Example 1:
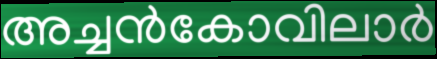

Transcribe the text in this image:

അച്ചൻകോവിലാർ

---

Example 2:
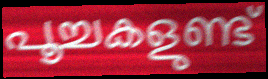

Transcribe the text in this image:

പൂച്ചകളുണ്ട്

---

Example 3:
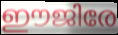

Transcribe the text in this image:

ഈജിരേ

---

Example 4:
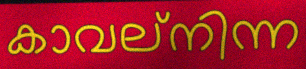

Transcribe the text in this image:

കാവല്നിന്ന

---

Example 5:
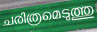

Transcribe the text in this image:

ചരിത്രമെടുത്തു